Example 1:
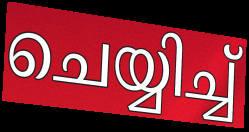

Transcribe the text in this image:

ചെയ്യിച്ച്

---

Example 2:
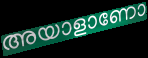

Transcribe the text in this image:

അയാളാണോ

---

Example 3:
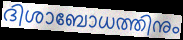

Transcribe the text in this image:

ദിശാബോധത്തിനും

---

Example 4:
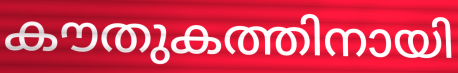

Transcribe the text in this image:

കൗതുകത്തിനായി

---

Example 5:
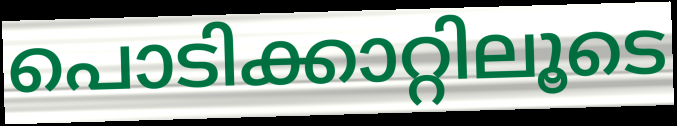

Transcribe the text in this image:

പൊടിക്കാറ്റിലൂടെ